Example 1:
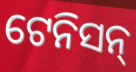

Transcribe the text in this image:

ଟେନିସନ୍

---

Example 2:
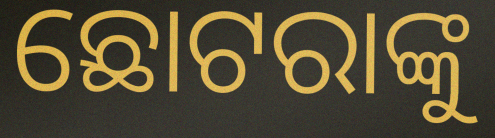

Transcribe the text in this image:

ଛୋଟରାଙ୍କୁ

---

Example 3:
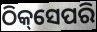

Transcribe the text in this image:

ଠିକ୍‌ସେପରି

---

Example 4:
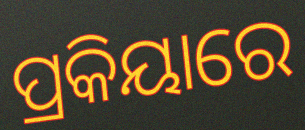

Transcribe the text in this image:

ପ୍ରକିୟାରେ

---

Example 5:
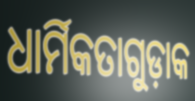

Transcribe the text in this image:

ଧାର୍ମିକତାଗୁଡ଼ାକ